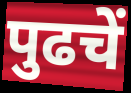
पुढचें